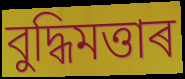
বুদ্ধিমত্তাৰ